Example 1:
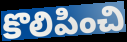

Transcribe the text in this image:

కొలిపించి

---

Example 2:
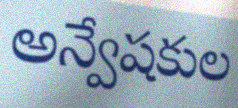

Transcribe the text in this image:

అన్వేషకుల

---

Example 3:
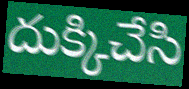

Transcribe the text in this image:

దుక్కిచేసి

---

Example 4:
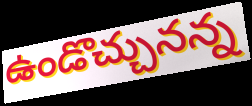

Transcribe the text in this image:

ఉండొచ్చునన్న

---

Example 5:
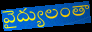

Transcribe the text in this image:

వైద్యులంతా